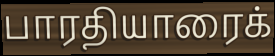
பாரதியாரைக்